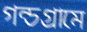
গন্ডগ্রামে